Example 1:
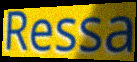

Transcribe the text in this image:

Ressa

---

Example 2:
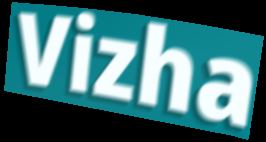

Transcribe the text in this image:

Vizha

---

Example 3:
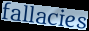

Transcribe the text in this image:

fallacies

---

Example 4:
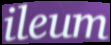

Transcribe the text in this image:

ileum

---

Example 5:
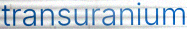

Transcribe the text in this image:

transuranium